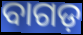
ବାଗଡ଼